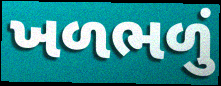
ખળભળું